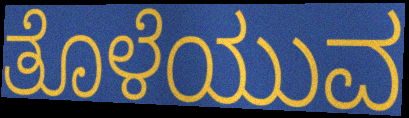
ತೊಳೆಯುವ